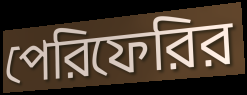
পেরিফেরির